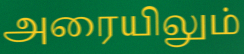
அரையிலும்